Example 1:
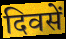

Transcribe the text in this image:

दिवसें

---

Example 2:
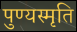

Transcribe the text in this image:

पुण्यस्मृति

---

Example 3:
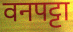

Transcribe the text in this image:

वनपट्टा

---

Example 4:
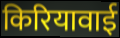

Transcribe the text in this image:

किरियावाई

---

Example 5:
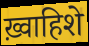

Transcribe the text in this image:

ख़्वाहिशे